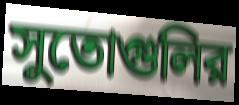
সুতোগুলির